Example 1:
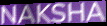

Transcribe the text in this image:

NAKSHA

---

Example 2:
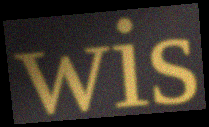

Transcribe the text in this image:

wis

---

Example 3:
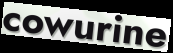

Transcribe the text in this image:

cowurine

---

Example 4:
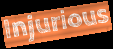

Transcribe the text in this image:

Injurious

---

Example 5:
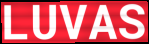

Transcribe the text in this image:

LUVAS